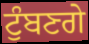
ਟੁੰਬਣਗੇ